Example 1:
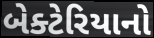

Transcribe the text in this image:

બેક્ટેરિયાનો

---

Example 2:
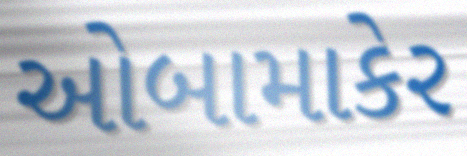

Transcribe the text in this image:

ઓબામાકેર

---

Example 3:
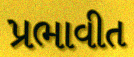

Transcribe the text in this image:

પ્રભાવીત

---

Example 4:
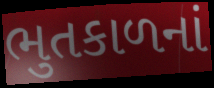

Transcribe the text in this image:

ભુતકાળનાં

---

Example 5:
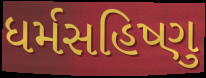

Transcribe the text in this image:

ધર્મસહિષ્ણુ